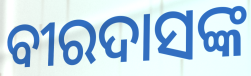
ବୀରଦାସଙ୍କ